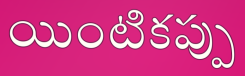
యింటికప్పు